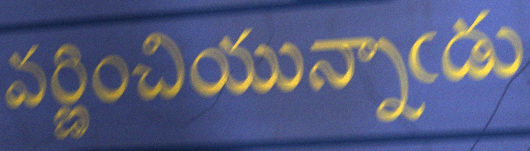
వర్ణించియున్నాఁడు